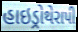
હાઇડ્રોથેરાપી